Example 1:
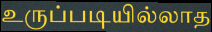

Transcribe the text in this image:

உருப்படியில்லாத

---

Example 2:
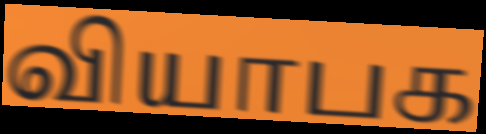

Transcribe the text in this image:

வியாபக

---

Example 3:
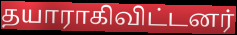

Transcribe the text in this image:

தயாராகிவிட்டனர்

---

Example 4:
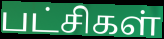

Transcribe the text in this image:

பட்சிகள்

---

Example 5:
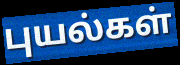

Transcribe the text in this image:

புயல்கள்